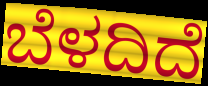
ಬೆಳದಿದೆ